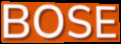
BOSE